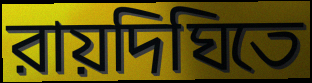
রায়দিঘিতে